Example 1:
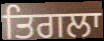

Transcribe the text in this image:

ਤਿਗਲਾ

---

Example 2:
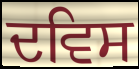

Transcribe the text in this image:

ਦਵਿਸ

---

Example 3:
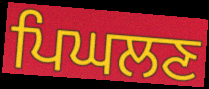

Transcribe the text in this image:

ਪਿਘਲਣ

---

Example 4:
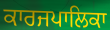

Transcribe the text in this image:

ਕਾਰਜਪਾਲਿਕਾ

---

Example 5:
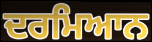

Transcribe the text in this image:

ਦਰਮਿਆਨ